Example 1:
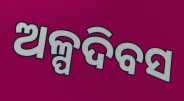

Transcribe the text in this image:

ଅଳ୍ପଦିବସ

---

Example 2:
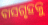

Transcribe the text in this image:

ବାସଗୃହକୁ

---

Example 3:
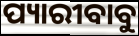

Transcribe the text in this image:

ପ୍ୟାରୀବାବୁ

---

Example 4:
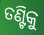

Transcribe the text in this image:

ତଣ୍ଟିକୁ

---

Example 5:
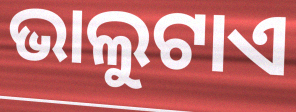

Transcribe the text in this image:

ଭାଲୁଟାଏ